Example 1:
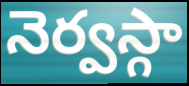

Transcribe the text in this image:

నెర్వస్గా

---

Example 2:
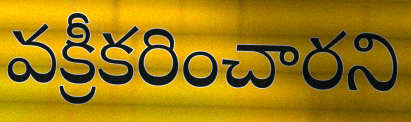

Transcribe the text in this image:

వక్రీకరించారని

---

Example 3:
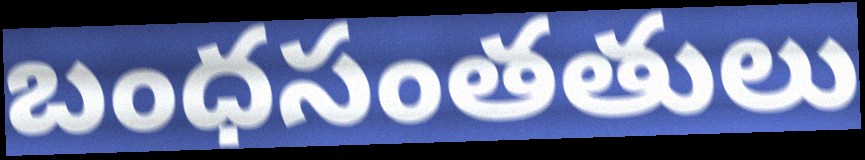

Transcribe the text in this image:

బంధసంతతులు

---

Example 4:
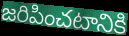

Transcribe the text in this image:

జరిపించటానికి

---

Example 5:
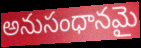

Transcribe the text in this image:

అనుసంధానమై